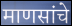
माणसांचे